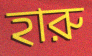
হারু